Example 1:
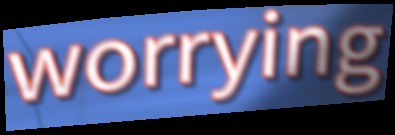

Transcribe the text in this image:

worrying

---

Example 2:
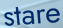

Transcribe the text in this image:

stare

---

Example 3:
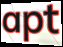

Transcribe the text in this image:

apt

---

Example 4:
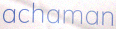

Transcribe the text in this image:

achaman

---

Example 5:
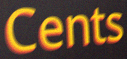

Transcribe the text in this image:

Cents